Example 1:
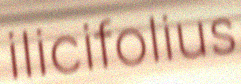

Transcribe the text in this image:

ilicifolius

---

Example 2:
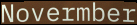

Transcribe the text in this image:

Novermber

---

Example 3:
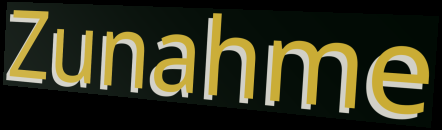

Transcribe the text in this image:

Zunahme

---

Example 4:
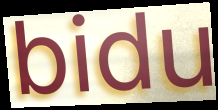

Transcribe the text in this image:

bidu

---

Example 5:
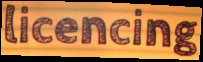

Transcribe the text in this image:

licencing